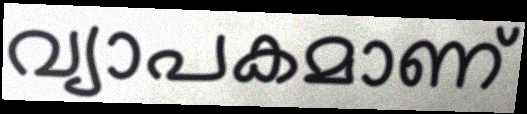
വ്യാപകമാണ്